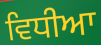
ਵਿਧੀਆ